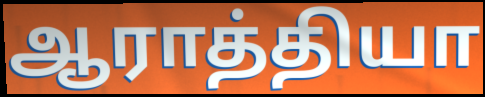
ஆராத்தியா